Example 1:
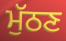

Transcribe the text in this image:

ਮੁੱਠਣ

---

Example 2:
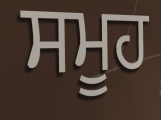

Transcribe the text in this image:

ਸਮੂਹ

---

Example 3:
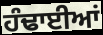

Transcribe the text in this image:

ਹੰਢਾਈਆਂ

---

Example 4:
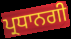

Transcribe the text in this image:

ਪ੍ਰਧਾਨਗੀ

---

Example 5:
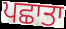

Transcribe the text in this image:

ਪਛਾਤਾ